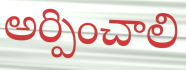
అర్పించాలి